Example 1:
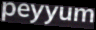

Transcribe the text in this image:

peyyum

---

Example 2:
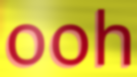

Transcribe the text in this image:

ooh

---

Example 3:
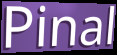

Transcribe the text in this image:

Pinal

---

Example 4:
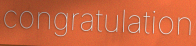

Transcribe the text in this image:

congratulation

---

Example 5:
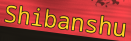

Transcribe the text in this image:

Shibanshu